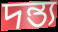
দন্ত্য